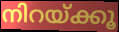
നിറയ്ക്കൂ